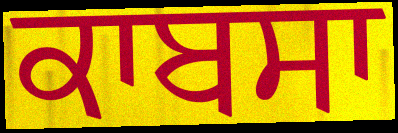
ਕਾਬਸਾ